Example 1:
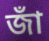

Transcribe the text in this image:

জাঁ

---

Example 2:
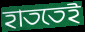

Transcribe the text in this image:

হাততেই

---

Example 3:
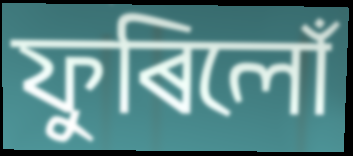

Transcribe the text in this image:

ফুৰিলোঁ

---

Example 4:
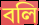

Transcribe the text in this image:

বলি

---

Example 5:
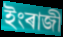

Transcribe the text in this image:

ইংৰাজী